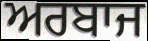
ਅਰਬਾਜ